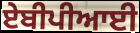
ਏਬੀਪੀਆਈ